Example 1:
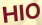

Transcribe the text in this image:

HIO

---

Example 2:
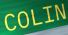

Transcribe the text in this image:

COLIN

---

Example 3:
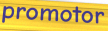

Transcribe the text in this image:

promotor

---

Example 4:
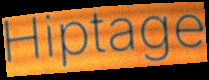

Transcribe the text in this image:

Hiptage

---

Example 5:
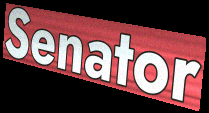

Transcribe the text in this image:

Senator